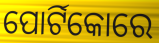
ପୋର୍ଟିକୋରେ